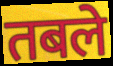
तबले